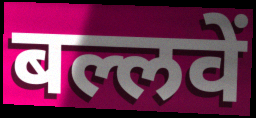
बल्लवें